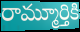
రామ్మూర్తికి